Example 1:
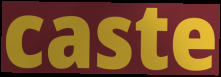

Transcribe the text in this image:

caste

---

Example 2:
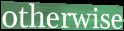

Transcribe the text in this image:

otherwise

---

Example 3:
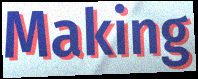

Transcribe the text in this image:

Making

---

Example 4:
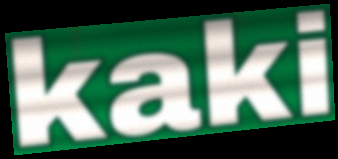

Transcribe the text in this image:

kaki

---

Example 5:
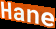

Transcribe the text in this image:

Hane